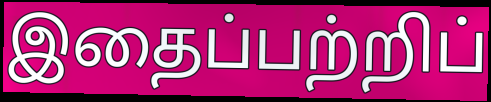
இதைப்பற்றிப்